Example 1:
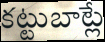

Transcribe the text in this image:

కట్టుబాట్లే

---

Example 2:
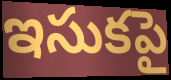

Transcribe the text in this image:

ఇసుకపై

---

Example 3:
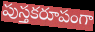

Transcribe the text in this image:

పుస్తకరూపంగా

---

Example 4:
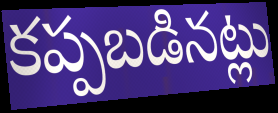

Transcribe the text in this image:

కప్పబడినట్లు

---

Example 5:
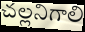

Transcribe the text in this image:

చల్లనిగాలి